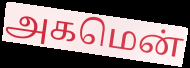
அகமென்